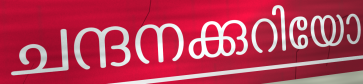
ചന്ദനക്കുറിയോ